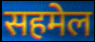
सहमेल